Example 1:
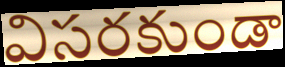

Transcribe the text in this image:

విసరకుండా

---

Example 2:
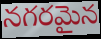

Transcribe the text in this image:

నగరమైన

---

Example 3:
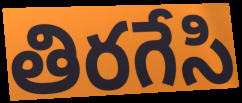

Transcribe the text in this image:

తిరగేసి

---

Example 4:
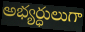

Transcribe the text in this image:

అభ్యర్ధులుగా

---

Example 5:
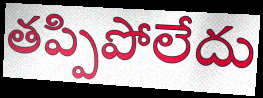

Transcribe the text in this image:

తప్పిపోలేదు